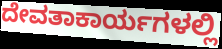
ದೇವತಾಕಾರ್ಯಗಳಲ್ಲಿ